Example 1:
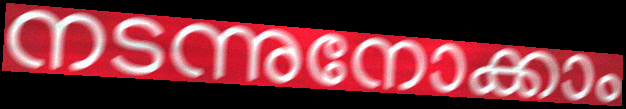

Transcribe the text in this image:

നടന്നുനോക്കാം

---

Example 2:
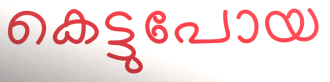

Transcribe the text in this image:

കെട്ടുപോയ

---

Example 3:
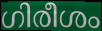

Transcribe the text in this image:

ഗിരീശം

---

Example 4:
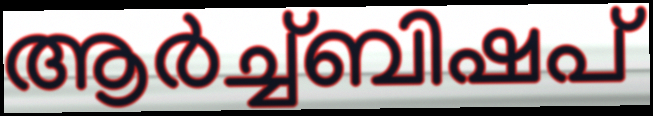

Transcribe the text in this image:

ആർച്ച്ബിഷപ്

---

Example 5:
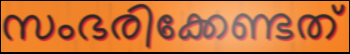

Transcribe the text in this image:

സംഭരിക്കേണ്ടത്